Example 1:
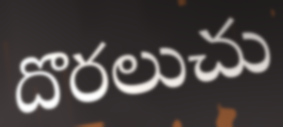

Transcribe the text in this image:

దొరలుచు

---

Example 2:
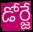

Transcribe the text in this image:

డోర్జే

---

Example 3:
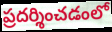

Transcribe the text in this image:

ప్రదర్శించడంలో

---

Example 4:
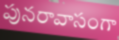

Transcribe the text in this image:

పునరావాసంగా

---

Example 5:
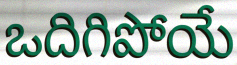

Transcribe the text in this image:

ఒదిగిపోయే